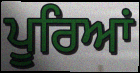
ਪੂਰਿਆਂ